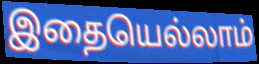
இதையெல்லாம்